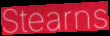
Stearns